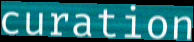
curation